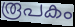
രൂപകം